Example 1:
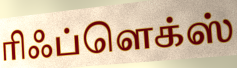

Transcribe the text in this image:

ரிஃப்ளெக்ஸ்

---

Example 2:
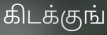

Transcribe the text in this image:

கிடக்குங்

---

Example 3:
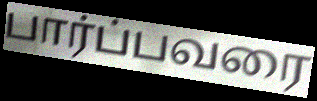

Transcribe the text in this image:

பார்ப்பவரை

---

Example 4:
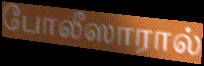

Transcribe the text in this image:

போலீஸாரால்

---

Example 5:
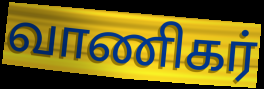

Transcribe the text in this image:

வாணிகர்